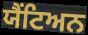
ਯੈਂਟਿਅਨ